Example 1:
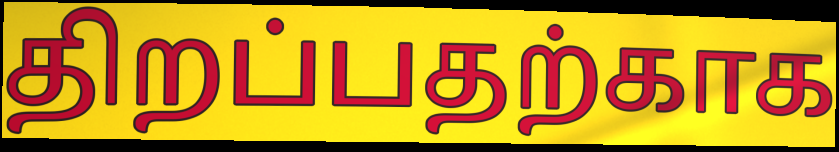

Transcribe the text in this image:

திறப்பதற்காக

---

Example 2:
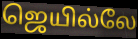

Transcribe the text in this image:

ஜெயில்லே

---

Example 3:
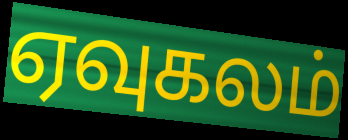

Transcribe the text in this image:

ஏவுகலம்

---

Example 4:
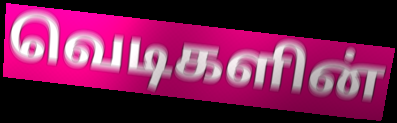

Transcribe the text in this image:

வெடிகளின்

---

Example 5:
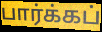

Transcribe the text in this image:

பார்க்கப்